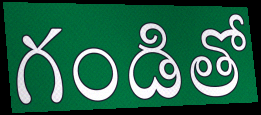
గండితో